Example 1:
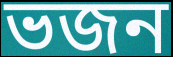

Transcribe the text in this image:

ভজন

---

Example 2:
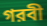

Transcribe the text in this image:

গরবী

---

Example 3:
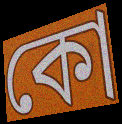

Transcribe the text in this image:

কো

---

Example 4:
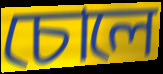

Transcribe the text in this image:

চোলে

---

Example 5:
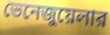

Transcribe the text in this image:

ভেনেজুয়েলার